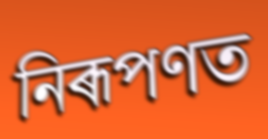
নিৰূপণত